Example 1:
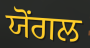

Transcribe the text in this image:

ਯੋਂਗਲ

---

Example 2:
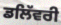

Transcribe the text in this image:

ਡਲਿੱਵਰੀ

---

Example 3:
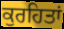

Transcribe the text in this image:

ਕੁਰਹਿਤਾਂ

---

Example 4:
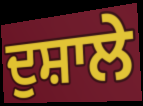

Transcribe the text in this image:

ਦੁਸ਼ਾਲੇ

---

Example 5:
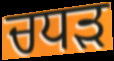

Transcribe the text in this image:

ਚਧੜ